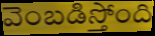
వెంబడిస్తోంది